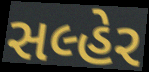
સલ્હેર